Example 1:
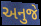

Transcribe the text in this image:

અનુજે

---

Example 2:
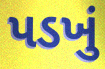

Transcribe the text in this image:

પડખું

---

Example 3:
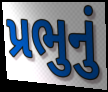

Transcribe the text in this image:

પ્રભુનું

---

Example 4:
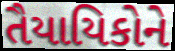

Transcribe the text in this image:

તૈયાયિકોને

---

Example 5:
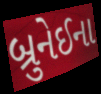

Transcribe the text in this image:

બ્રુનેઈના